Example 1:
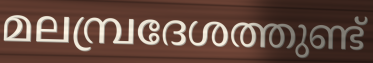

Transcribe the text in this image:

മലമ്പ്രദേശത്തുണ്ട്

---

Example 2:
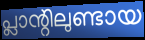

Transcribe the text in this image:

പ്ലാന്റിലുണ്ടായ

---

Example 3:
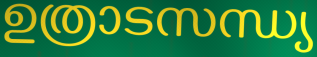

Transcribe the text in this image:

ഉത്രാടസന്ധ്യ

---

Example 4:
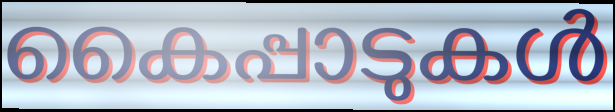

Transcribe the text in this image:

കൈപ്പാടുകൾ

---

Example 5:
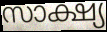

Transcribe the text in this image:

സാക്ഷ്യ